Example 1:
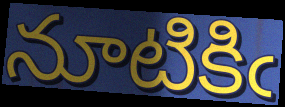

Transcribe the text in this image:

నూటికిఁ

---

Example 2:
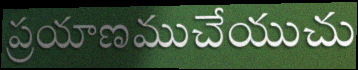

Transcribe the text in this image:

ప్రయాణముచేయుచు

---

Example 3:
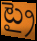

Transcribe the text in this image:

ట్రై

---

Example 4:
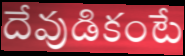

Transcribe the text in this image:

దేవుడికంటే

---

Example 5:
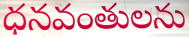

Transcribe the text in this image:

ధనవంతులను